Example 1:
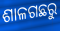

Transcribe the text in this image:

ଶାଳଗଛରୁ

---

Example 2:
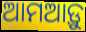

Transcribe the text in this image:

ଆମଆଡ଼ୁ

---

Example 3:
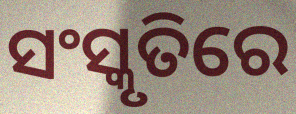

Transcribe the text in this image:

ସଂସ୍କୃତିରେ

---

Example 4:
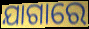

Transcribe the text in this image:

ଯାଗାରେ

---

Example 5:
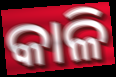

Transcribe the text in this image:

କାଳି